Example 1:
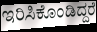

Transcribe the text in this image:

ಇರಿಸಿಕೊಂಡಿದ್ದರೆ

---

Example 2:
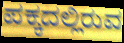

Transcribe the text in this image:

ಪಕ್ಕದಲ್ಲಿರುವ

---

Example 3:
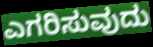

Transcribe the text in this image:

ಎಗರಿಸುವುದು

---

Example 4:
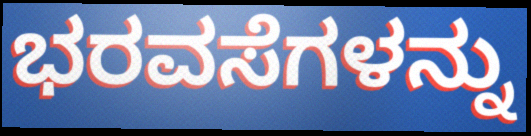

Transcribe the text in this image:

ಭರವಸೆಗಳನ್ನು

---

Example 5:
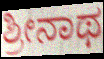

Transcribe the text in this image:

ಶ್ರೀನಾಥ